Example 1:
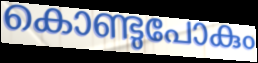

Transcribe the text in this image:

കൊണ്ടുപോകും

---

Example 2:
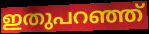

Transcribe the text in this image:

ഇതുപറഞ്ഞ്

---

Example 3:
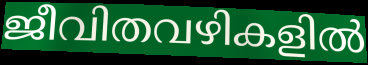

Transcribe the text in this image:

ജീവിതവഴികളിൽ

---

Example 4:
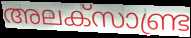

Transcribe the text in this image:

അലക്സാണ്ട്ര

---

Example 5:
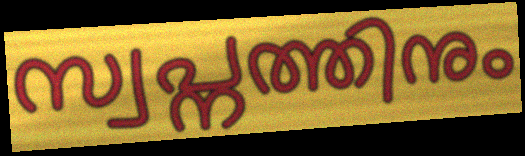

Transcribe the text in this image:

സ്വപ്നത്തിനും